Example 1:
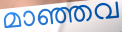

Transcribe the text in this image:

മാഞ്ഞവ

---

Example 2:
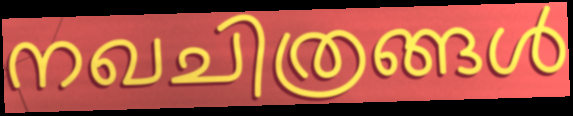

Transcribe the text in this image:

നഖചിത്രങ്ങൾ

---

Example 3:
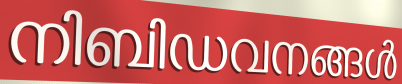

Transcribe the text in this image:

നിബിഡവനങ്ങൾ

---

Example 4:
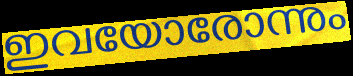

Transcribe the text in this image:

ഇവയോരോന്നും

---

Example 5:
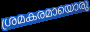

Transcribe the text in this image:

ശ്രമകരമായൊരു